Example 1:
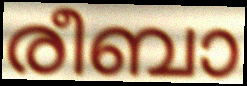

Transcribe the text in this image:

രീബാ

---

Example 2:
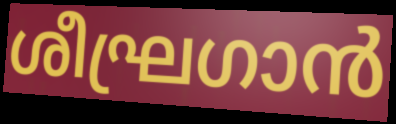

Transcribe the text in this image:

ശീഘ്രഗാൻ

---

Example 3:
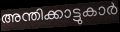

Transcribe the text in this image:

അന്തിക്കാട്ടുകാർ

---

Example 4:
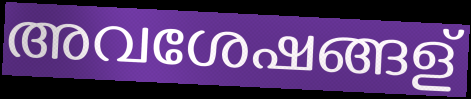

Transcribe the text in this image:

അവശേഷങ്ങള്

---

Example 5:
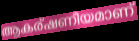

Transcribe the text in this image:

ആകര്ഷണീയമാണ്